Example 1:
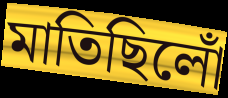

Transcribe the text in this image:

মাতিছিলোঁ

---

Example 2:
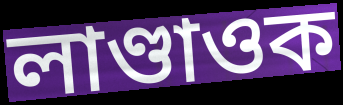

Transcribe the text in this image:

লাণ্ডাওক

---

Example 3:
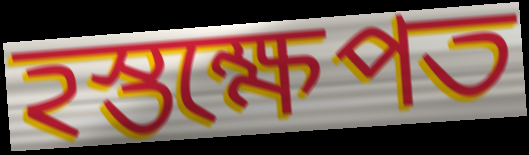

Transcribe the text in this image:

হস্তক্ষেপত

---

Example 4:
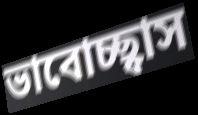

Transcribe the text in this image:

ভাবোচ্ছ্বাস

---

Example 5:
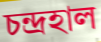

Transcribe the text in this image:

চন্দ্ৰহাল